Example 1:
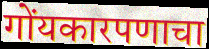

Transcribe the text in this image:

गोंयकारपणाचा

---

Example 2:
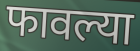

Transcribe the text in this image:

फावल्या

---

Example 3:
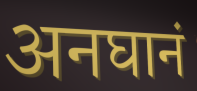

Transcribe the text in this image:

अनघानं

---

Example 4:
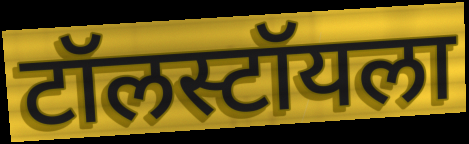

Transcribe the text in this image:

टॉलस्टॉयला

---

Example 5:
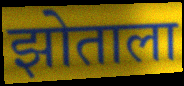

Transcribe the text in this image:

झोताला